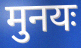
मुनयः